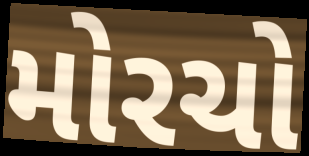
મોરચો